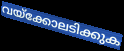
വയ്ക്കോലടിക്കുക